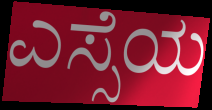
ಎಸ್ಸೆಯ